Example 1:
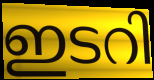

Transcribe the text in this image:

ഇടറി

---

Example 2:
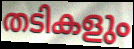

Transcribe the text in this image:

തടികളും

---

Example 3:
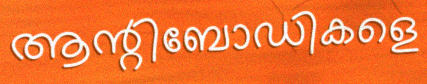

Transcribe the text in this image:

ആന്റിബോഡികളെ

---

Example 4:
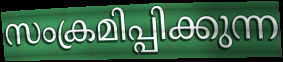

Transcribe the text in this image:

സംക്രമിപ്പിക്കുന്ന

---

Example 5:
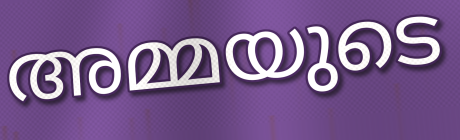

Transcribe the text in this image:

അമ്മയുടെ